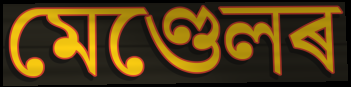
মেণ্ডেলৰ